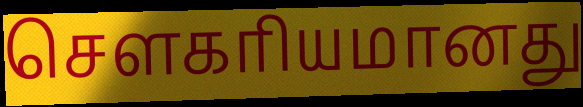
சௌகரியமானது